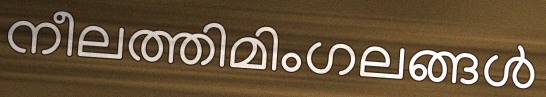
നീലത്തിമിംഗലങ്ങൾ